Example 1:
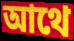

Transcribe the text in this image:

আথে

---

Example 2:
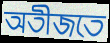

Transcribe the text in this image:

অতীজতে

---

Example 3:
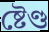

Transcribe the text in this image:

ষ্টেণ্ড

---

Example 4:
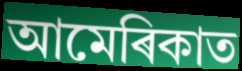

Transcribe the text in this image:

আমেৰিকাত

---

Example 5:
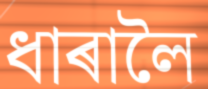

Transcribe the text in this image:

ধাৰালৈ